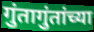
गुंतागुंतांच्या